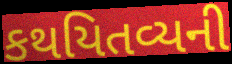
કથયિતવ્યની